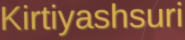
Kirtiyashsuri